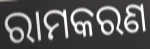
ରାମକରଣ